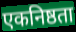
एकनिष्ठता